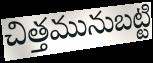
చిత్తమునుబట్టి